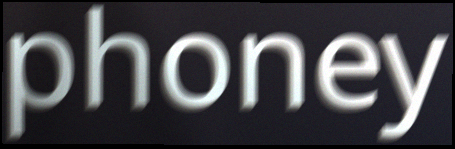
phoney